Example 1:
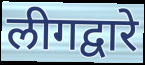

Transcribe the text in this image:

लीगद्वारे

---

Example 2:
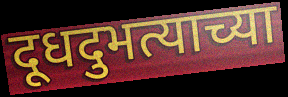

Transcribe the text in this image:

दूधदुभत्याच्या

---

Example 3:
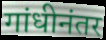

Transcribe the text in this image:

गांधीनंतर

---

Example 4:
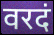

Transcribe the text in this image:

वरदं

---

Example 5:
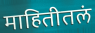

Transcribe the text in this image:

माहितीतलं